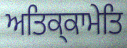
ਅਤਿਕ੍ਕਾਮੇਤਿ